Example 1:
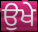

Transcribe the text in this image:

ਉਖੇ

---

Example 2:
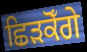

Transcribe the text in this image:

ਛਿੜਕੋਁਗੇ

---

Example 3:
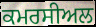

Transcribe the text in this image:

ਕਮਰਸੀਅਲ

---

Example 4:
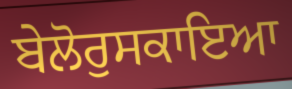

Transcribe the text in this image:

ਬੇਲੋਰੁਸਕਾਇਆ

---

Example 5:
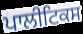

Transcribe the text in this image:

ਪਾਲੀਟਿਕਸ